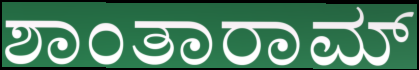
ಶಾಂತಾರಾಮ್